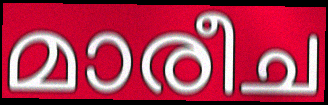
മാരീച